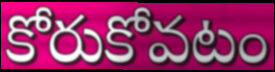
కోరుకోవటం